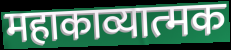
महाकाव्‍यात्‍मक